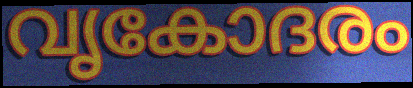
വൃകോദരം